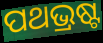
ପଥଭ୍ରଷ୍ଟ